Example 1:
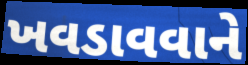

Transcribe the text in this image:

ખવડાવવાને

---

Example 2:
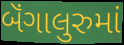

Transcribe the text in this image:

બૅંગાલુરુમાં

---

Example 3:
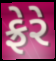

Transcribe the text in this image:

ફ્રેરે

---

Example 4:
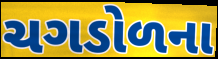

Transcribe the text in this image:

ચગડોળના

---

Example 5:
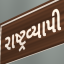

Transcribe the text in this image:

રાષ્ટ્રવ્યાપી